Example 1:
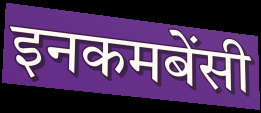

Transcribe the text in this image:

इनकमबेंसी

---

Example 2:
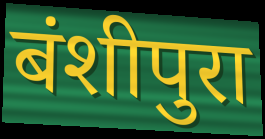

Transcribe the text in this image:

बंशीपुरा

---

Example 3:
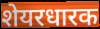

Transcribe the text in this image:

शेयरधारक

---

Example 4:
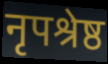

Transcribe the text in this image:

नृपश्रेष्ठ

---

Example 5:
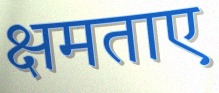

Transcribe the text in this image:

क्षमताए